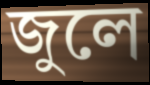
জুলে